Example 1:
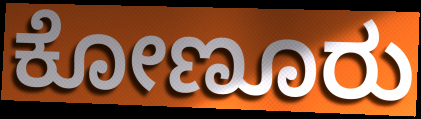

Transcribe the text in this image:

ಕೋಣೂರು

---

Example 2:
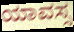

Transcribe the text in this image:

ಯಾವಸ್ಸ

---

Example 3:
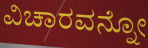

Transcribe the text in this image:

ವಿಚಾರವನ್ನೋ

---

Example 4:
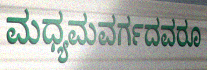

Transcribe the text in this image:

ಮಧ್ಯಮವರ್ಗದವರೂ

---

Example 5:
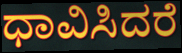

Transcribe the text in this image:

ಧಾವಿಸಿದರೆ